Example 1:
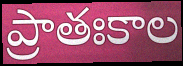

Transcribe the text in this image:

ప్రాతఃకాల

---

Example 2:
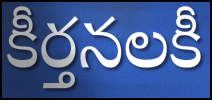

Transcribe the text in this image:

కీర్తనలకీ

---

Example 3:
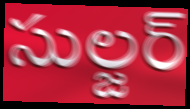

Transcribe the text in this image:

సుల్జర్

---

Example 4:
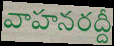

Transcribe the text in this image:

వాహనరద్దీ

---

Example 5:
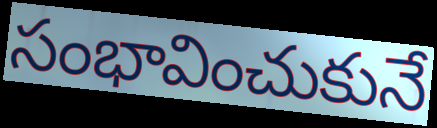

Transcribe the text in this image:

సంభావించుకునే